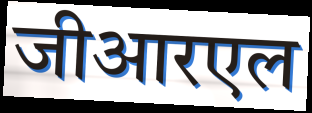
जीआरएल